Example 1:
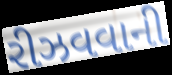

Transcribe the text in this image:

રીઝવવાની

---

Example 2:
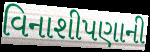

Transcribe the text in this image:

વિનાશીપણાની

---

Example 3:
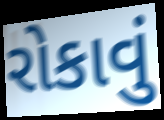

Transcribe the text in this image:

રોકાવું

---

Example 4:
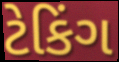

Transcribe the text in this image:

ટેકિંગ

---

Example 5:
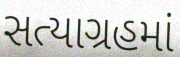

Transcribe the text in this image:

સત્યાગ્રહમાં